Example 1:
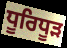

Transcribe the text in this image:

ਧੂਰਿਧੂੜ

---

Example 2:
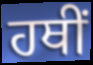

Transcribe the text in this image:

ਹਥੀਂ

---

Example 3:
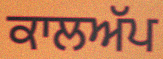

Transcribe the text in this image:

ਕਾਲਅੱਪ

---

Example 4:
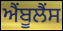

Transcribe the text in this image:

ਐੰਬੂਲੈੰਸ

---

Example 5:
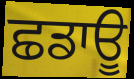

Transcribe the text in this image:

ਛਡਾਊ